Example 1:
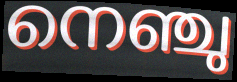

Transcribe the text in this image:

നെഞ്ചു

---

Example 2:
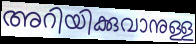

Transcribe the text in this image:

അറിയിക്കുവാനുള്ള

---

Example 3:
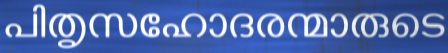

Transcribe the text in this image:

പിതൃസഹോദരന്മാരുടെ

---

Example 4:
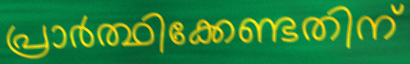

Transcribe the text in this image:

പ്രാർത്ഥിക്കേണ്ടതിന്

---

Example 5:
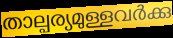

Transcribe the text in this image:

താല്പര്യമുള്ളവർക്കു